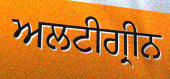
ਅਲਟੀਗ੍ਰੀਨ